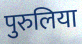
पुरुलिया